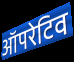
ऑपरेटिव